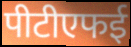
पीटीएफई